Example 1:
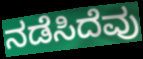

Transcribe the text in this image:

ನಡೆಸಿದೆವು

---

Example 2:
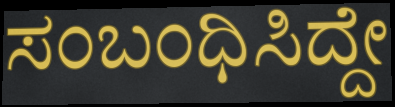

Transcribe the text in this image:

ಸಂಬಂಧಿಸಿದ್ದೇ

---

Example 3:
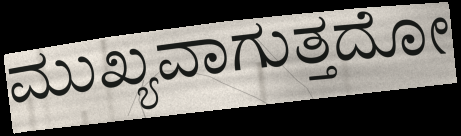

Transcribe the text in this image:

ಮುಖ್ಯವಾಗುತ್ತದೋ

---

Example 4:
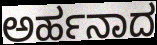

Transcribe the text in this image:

ಅರ್ಹನಾದ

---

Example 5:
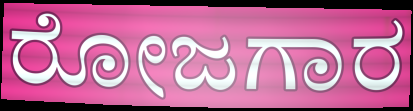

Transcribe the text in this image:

ರೋಜಗಾರ